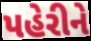
પહેરીને